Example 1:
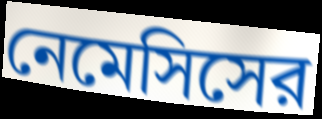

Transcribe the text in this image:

নেমেসিসের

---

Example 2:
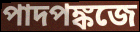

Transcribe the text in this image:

পাদপঙ্কজে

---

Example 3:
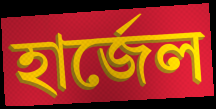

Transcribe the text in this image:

হার্জেল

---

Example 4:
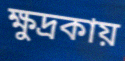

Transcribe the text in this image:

ক্ষুদ্রকায়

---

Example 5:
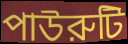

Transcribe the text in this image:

পাউরুটি